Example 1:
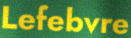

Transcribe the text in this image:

Lefebvre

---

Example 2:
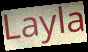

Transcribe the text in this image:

Layla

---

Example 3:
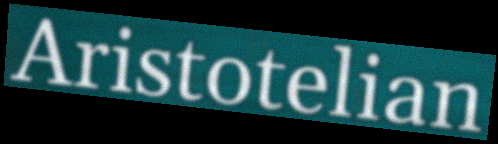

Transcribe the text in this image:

Aristotelian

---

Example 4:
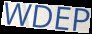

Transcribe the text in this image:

WDEP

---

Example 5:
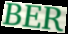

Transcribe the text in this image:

BER